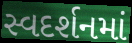
સ્વદર્શનમાં